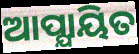
ଆପ୍ଯାୟିତ